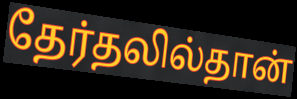
தேர்தலில்தான்